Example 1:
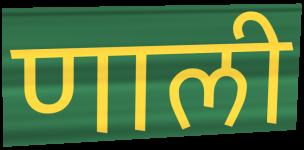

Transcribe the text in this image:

णाली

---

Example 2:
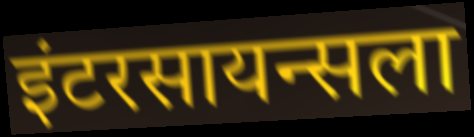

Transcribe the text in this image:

इंटरसायन्सला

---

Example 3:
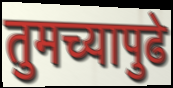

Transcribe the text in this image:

तुमच्यापुढे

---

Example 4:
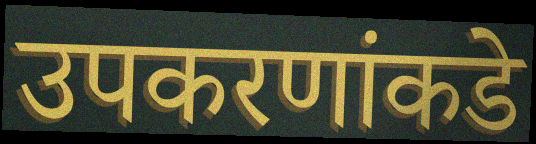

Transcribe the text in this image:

उपकरणांकडे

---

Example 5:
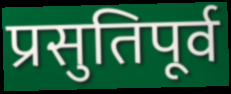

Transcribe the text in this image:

प्रसुतिपूर्व